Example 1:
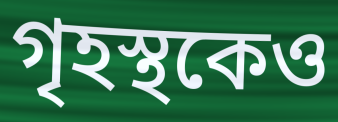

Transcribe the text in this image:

গৃহস্থকেও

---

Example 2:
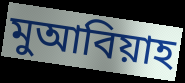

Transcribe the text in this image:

মুআবিয়াহ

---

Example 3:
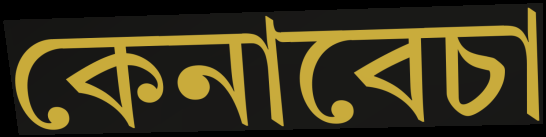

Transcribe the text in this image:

কেনাবেচা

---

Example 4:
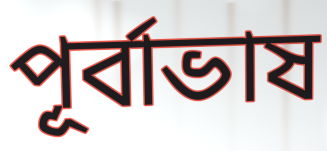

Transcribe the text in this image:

পূর্বাভাষ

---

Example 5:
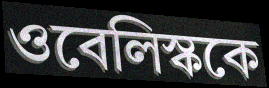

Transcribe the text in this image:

ওবেলিস্ককে